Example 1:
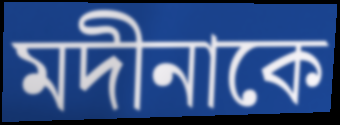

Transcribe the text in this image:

মদীনাকে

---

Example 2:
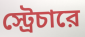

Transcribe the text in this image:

স্ট্রেচারে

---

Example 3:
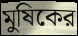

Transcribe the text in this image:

মুষিকের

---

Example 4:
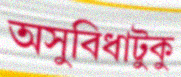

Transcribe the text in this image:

অসুবিধাটুকু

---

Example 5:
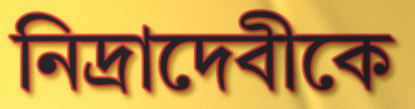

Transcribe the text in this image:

নিদ্রাদেবীকে